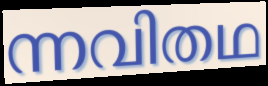
ന്നവിതഥ